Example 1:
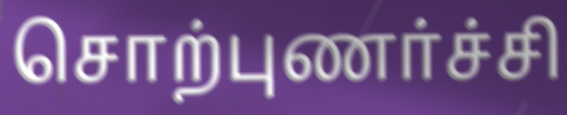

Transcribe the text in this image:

சொற்புணர்ச்சி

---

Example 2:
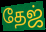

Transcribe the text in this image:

தேஜ்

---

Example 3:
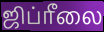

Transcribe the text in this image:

ஜிப்ரீலை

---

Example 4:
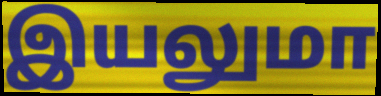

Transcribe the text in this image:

இயலுமா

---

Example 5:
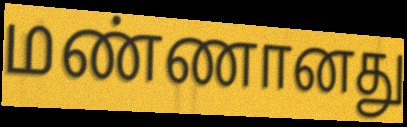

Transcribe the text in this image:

மண்ணானது